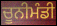
ਚੂਨੀਮੰਡੀ